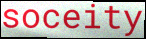
soceity